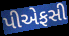
પીએફસી